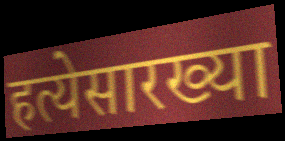
हत्येसारख्या